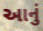
આનું